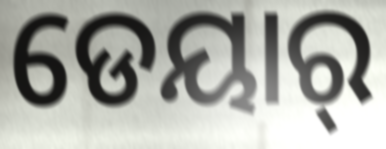
ଡେୟାର୍